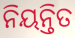
ନିୟନ୍ତିତ